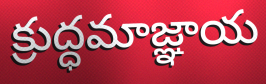
క్రుద్ధమాజ్ఞాయ